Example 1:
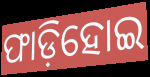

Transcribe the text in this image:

ଫାଡ଼ିହୋଇ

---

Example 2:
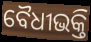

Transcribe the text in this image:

ବୈଧୀଭକ୍ତି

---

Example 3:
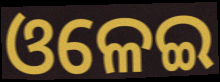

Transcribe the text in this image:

ଓଳେଇ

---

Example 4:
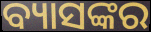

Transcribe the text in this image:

ବ୍ୟାସଙ୍କର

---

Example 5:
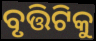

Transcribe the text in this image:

ବୃତ୍ତିଟିକୁ